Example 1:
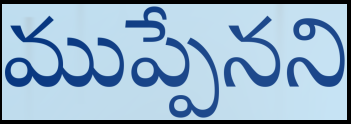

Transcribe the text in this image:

ముప్పేనని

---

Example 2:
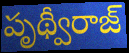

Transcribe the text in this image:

పృథ్వీరాజ్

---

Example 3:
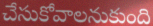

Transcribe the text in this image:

చేసుకోవాలనుకుంది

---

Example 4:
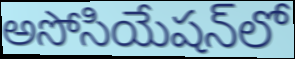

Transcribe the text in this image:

అసోసియేషన్‌లో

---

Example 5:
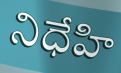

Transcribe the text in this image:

నిధేహి